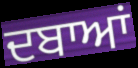
ਦਬਾਆਂ